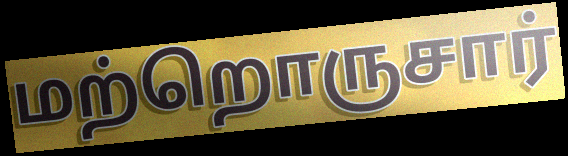
மற்றொருசார்